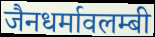
जैनधर्मावलम्बी